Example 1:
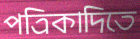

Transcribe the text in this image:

পত্রিকাদিতে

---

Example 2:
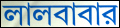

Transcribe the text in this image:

লালবাবার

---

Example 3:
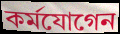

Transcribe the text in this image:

কর্মযোগেন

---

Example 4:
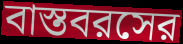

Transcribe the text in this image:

বাস্তবরসের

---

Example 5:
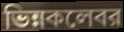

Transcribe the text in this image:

ভিন্নকলেবর